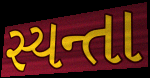
સ્યન્તા